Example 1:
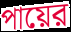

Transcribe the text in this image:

পায়ের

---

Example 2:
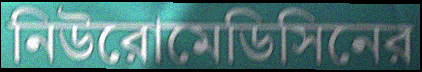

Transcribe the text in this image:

নিউরোমেডিসিনের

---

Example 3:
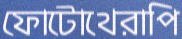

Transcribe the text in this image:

ফোটোথেরাপি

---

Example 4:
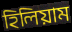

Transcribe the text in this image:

হিলিয়াম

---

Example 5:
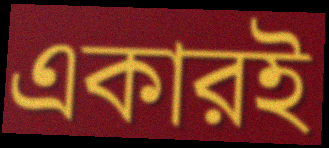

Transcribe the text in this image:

একারই